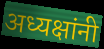
अध्यक्षांनी